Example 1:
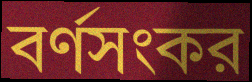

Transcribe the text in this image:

বর্ণসংকর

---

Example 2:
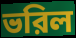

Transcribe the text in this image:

ভরিল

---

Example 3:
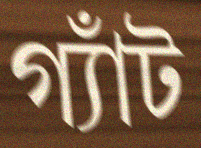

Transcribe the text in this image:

গ্যাঁট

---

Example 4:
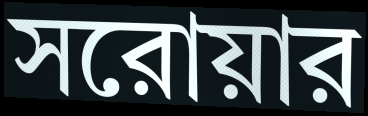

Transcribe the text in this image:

সরোয়ার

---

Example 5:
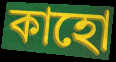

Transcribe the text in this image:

কাহো